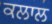
ਕਲਾਲ